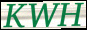
KWH